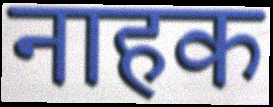
नाहक